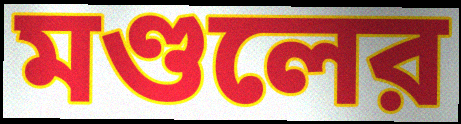
মণ্ডলের